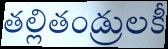
తల్లితండ్రులకీ